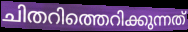
ചിതറിത്തെറിക്കുന്നത്